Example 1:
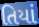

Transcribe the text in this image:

તિયાં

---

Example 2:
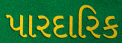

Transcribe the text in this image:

પારદારિક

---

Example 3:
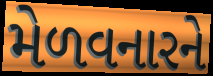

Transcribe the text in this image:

મેળવનારને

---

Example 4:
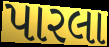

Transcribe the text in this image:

પારલા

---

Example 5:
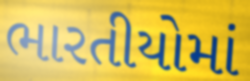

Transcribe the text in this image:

ભારતીયોમાં